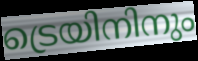
ട്രെയിനിനും